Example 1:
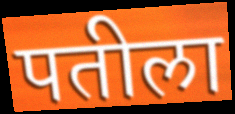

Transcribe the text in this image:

पतीला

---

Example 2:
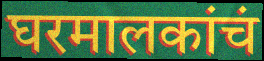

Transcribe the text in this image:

घरमालकांचं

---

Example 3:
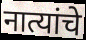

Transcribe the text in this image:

नात्यांचे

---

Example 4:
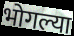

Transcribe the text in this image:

भोगल्या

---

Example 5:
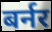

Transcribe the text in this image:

बर्नर